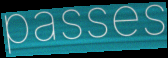
passes